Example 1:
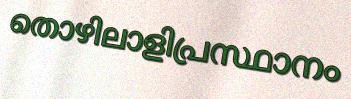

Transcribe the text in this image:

തൊഴിലാളിപ്രസ്ഥാനം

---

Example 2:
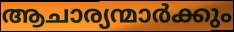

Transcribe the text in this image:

ആചാര്യന്മാർക്കും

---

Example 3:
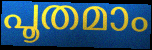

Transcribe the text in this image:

പൂതമാം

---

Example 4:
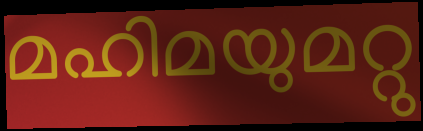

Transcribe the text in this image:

മഹിമയുമറ്റു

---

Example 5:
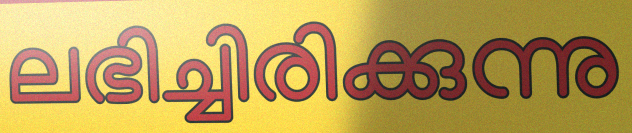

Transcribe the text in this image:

ലഭിച്ചിരിക്കുന്നു